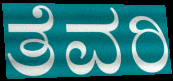
ತೆವರಿ